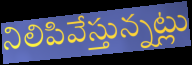
నిలిపివేస్తున్నట్లు